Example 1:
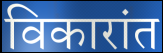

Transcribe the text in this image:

विकारांत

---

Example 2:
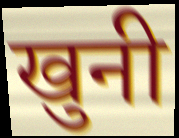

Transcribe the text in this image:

खुनी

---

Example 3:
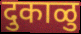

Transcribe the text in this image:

दुकाळु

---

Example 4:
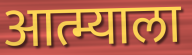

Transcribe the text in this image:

आत्म्याला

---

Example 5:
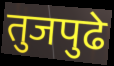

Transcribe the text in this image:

तुजपुढे